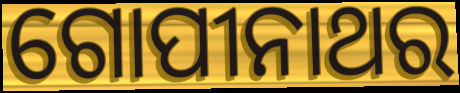
ଗୋପୀନାଥର